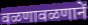
वळणावळणानें